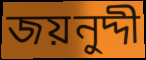
জয়নুদ্দী